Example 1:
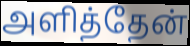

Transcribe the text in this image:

அளித்தேன்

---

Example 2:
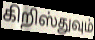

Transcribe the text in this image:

கிறிஸ்துவும்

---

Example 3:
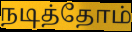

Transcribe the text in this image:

நடித்தோம்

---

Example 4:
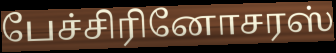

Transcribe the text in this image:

பேச்சிரினோசரஸ்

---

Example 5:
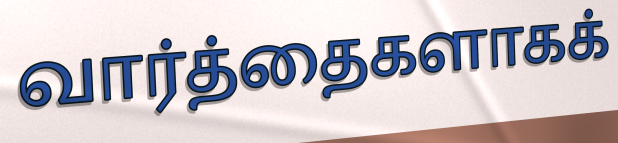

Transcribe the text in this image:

வார்த்தைகளாகக்